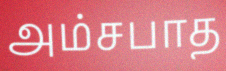
அம்சபாத